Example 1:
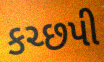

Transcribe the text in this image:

કચ્છપી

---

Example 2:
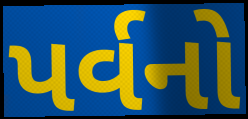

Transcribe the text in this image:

પર્વનો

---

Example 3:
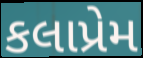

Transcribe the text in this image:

કલાપ્રેમ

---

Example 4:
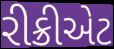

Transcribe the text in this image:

રીક્રીએટ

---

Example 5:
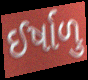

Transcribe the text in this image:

ઈર્ષાળુ